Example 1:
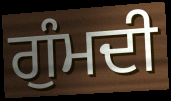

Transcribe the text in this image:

ਗੁੰਮਦੀ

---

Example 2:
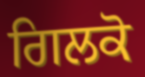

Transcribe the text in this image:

ਗਿਲਕੋ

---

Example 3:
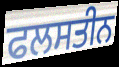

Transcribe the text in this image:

ਫਲਸਤੀਨ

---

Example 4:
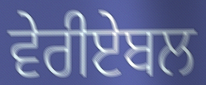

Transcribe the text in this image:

ਵੇਰੀਏਬਲ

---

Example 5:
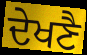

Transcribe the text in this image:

ਦੇਖਣੈ